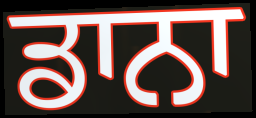
ਡਾਨਾ